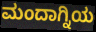
ಮಂದಾಗ್ನಿಯ